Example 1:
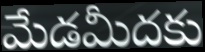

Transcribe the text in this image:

మేడమీదకు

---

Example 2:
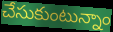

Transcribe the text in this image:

చేసుకుంటున్నాం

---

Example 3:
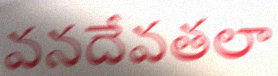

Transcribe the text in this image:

వనదేవతలా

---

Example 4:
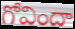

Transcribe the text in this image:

గోవిందా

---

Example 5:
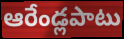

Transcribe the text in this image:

ఆరేండ్లపాటు